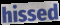
hissed